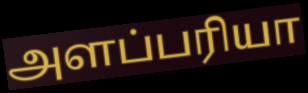
அளப்பரியா